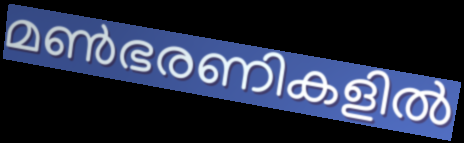
മൺഭരണികളിൽ